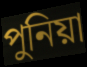
পুনিয়া